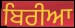
ਬਿਰੀਆ